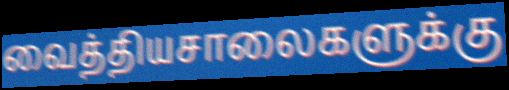
வைத்தியசாலைகளுக்கு